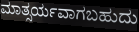
ಮಾತ್ಸರ್ಯವಾಗಬಹುದು